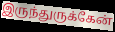
இருந்துருக்கேன்